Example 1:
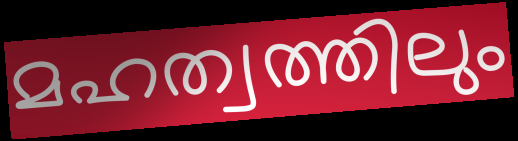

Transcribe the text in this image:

മഹത്വത്തിലും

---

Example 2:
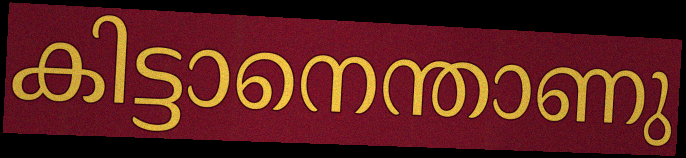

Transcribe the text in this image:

കിട്ടാനെന്താണു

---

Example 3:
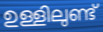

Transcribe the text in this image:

ഉള്ളിലുണ്ട്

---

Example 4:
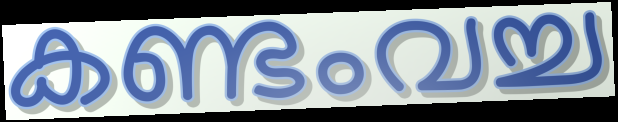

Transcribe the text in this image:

കണ്ടംവച്ച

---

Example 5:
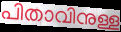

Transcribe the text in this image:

പിതാവിനുള്ള